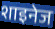
शाइनेज